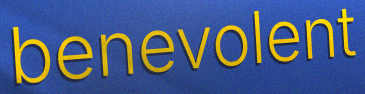
benevolent